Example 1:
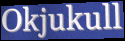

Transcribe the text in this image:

Okjukull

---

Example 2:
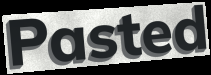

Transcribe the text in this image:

Pasted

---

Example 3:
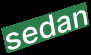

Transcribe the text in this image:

sedan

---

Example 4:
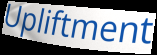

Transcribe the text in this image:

Upliftment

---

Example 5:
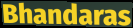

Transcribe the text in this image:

Bhandaras